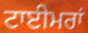
ਟਾਈਮਰਾਂ